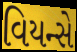
વિયન્સે